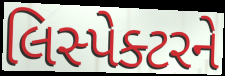
લિસ્પેક્ટરને